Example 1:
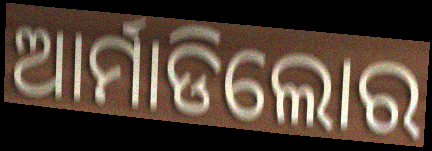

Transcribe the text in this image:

ଆର୍ମାଡିଲୋର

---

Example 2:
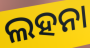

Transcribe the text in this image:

ଲହନା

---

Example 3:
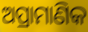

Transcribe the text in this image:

ଅପ୍ରାମାଣିକ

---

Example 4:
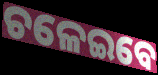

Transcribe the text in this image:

ଚଳେଇବେ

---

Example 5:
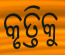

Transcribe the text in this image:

କୃତ୍ତିକୁ